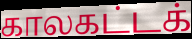
காலகட்டக்